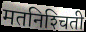
मतनिश्चिती